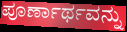
ಪೂರ್ಣಾರ್ಥವನ್ನು